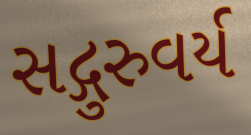
સદ્ગુરુવર્ય